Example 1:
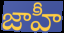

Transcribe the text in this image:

జాహీ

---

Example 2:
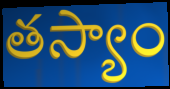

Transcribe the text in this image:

తస్యాం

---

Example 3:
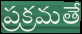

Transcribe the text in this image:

ప్రక్రమతే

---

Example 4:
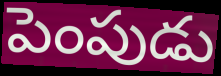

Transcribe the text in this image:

పెంపుడు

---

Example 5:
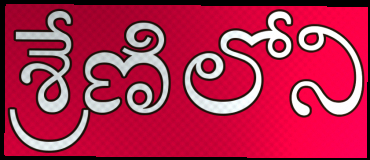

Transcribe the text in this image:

శ్రేణిలోని